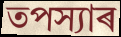
তপস্যাৰ